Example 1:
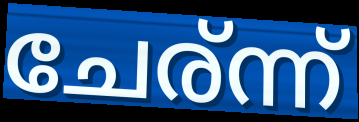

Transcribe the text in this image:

ചേര്ന്ന്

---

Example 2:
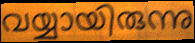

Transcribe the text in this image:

വയ്യായിരുന്നു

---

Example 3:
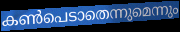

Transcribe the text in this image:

കൺപെടാതെന്നുമെന്നും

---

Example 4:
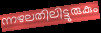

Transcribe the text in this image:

ന്നഴലതിലിട്ടുരുകും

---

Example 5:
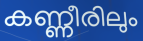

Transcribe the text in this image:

കണ്ണീരിലും